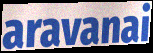
aravanai